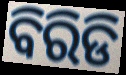
ବିରିଡି